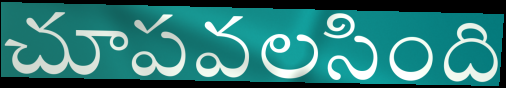
చూపవలసింది